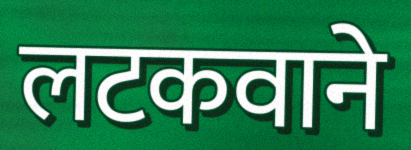
लटकवाने